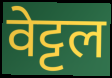
वेट्टल